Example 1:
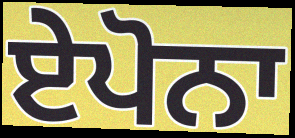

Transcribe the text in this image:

ਏਪੋਨਾ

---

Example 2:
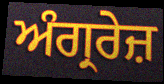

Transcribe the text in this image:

ਅੰਗ੍ਰਰੇਜ਼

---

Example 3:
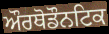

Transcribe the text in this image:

ਔਰਥੋਡੌਨਟਿਕ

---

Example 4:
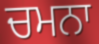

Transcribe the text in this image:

ਚਮਨਾ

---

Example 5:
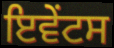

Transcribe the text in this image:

ਇਵੇੰਟਸ